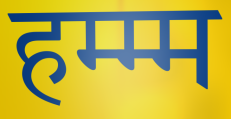
हम्म्म